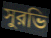
সুরভি